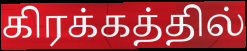
கிரக்கத்தில்